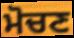
ਮੋਚਣ